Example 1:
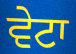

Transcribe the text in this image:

ਵੇਟਾ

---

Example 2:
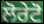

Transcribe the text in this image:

ਲੋਰੇਟੋ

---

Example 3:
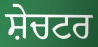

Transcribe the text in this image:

ਸ਼ੇਚਟਰ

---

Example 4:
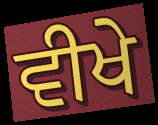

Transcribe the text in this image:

ਵੀਖੇ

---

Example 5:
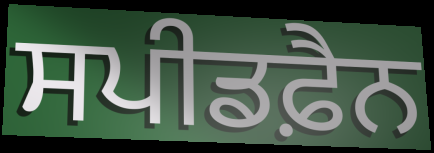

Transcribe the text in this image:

ਸਪੀਡਫ਼ੈਨ